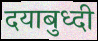
दयाबुध्दी